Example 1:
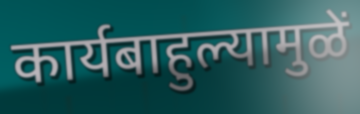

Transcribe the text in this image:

कार्यबाहुल्यामुळें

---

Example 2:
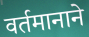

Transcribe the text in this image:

वर्तमानाने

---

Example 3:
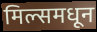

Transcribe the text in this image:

मिल्समधून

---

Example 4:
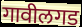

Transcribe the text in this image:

गावीलगड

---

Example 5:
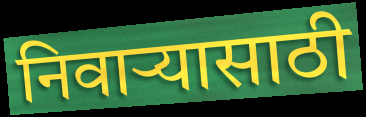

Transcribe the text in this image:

निवाऱ्यासाठी